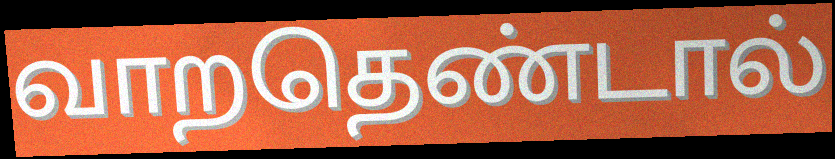
வாறதெண்டால்